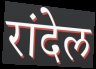
रांदेल